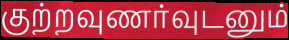
குற்றவுணர்வுடனும்